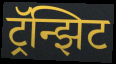
ट्रॅन्झिट